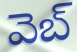
వెబ్